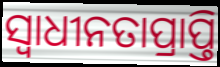
ସ୍ଵାଧୀନତାପ୍ରାପ୍ତି